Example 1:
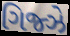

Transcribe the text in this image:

ગિજ્ઝે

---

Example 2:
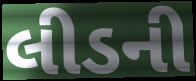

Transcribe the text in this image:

લીડની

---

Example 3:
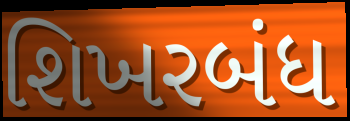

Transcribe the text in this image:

શિખરબંધ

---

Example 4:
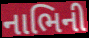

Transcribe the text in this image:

નાભિની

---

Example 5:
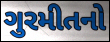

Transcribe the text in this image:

ગુરમીતનો